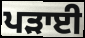
ਪੜਾਈ